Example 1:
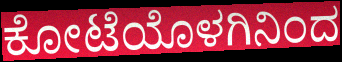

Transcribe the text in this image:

ಕೋಟೆಯೊಳಗಿನಿಂದ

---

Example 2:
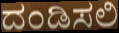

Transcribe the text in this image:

ದಂಡಿಸಲಿ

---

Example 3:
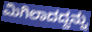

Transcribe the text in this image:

ಮಿಗಿಲಾದದ್ದನ್ನು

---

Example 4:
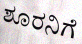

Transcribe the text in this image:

ಶೂರನಿಗೆ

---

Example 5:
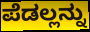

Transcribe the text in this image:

ಪೆಡಲ್ಲನ್ನು